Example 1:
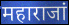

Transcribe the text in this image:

महाराजां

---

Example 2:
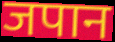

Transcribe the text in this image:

जपान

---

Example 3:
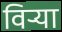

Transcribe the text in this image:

विऱ्या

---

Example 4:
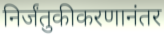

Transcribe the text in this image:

निर्जंतुकीकरणानंतर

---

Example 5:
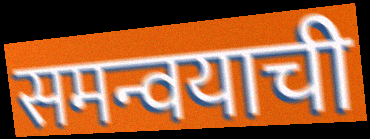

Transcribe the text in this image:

समन्वयाची